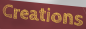
Creations